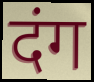
दंग